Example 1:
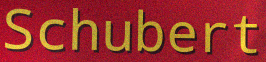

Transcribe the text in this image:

Schubert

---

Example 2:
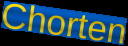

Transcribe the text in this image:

Chorten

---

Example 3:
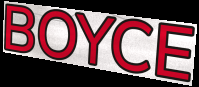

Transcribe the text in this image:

BOYCE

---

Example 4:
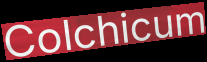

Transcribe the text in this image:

Colchicum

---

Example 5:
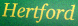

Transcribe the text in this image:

Hertford